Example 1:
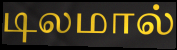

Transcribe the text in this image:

டிலமால்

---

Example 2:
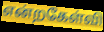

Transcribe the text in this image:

என்றகேள்வி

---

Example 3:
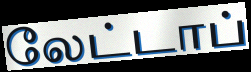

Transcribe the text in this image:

லேட்டாப்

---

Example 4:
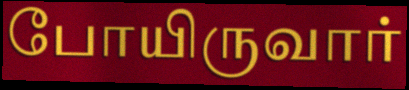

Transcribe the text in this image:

போயிருவார்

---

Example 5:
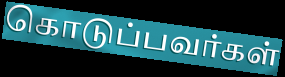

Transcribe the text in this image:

கொடுப்பவர்கள்